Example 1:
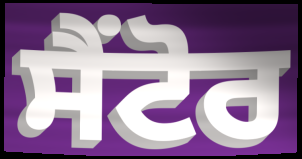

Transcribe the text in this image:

ਸੈਂਟੋਰ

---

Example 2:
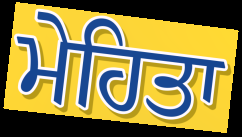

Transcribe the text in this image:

ਮੇਹਿਤਾ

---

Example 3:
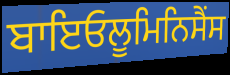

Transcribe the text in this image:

ਬਾਇਓਲੂਮਿਨਿਸੈਂਸ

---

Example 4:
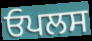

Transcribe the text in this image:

ਓਪਲਸ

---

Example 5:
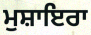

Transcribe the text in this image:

ਮੁਸ਼ਾਇਰਾ